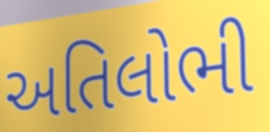
અતિલોભી